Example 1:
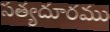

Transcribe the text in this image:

సత్యదూరము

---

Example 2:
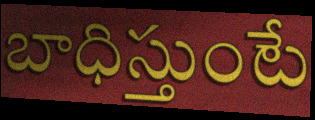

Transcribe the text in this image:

బాధిస్తుంటే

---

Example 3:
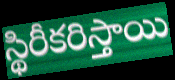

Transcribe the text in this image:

స్థిరీకరిస్తాయి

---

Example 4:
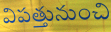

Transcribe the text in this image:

విపత్తునుంచి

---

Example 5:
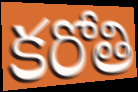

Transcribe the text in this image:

కరోతి